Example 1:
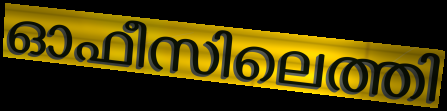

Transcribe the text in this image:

ഓഫീസിലെത്തി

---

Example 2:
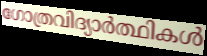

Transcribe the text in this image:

ഗോത്രവിദ്യാർത്ഥികൾ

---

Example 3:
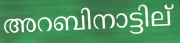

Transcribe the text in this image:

അറബിനാട്ടില്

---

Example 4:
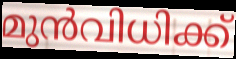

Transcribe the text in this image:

മുൻവിധിക്ക്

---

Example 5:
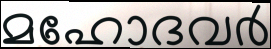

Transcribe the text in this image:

മഹോദവർ